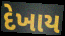
દેખાય